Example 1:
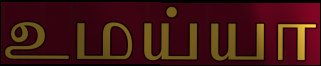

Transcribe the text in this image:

உமய்யா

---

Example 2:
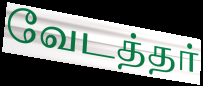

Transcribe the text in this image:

வேடத்தர்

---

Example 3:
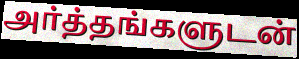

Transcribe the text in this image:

அர்த்தங்களுடன்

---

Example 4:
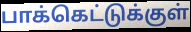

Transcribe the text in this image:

பாக்கெட்டுக்குள்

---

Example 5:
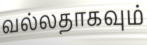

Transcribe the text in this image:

வல்லதாகவும்